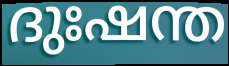
ദുഃഷന്ത